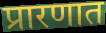
प्रारणात